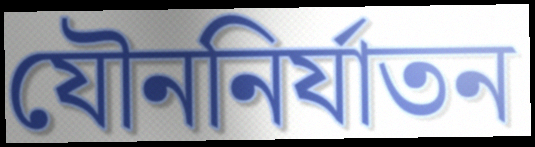
যৌননির্যাতন